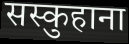
सस्कुहाना